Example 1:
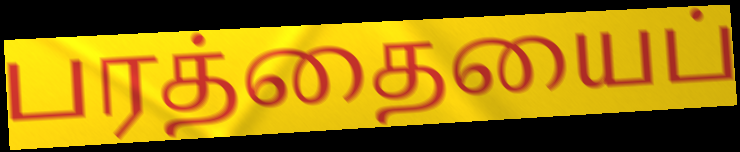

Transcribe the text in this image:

பரத்தையைப்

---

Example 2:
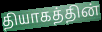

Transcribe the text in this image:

தியாகத்தின்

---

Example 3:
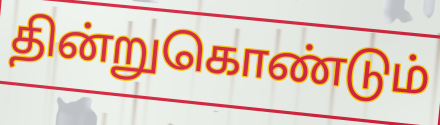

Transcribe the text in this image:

தின்றுகொண்டும்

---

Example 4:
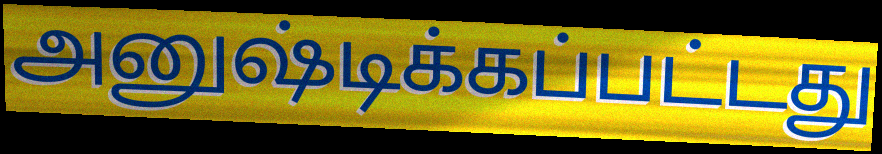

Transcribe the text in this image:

அனுஷ்டிக்கப்பட்டது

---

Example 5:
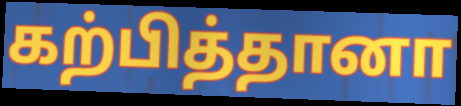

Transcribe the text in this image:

கற்பித்தானா